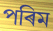
পৰিম